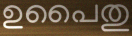
ഉപൈതു